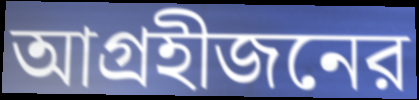
আগ্রহীজনের